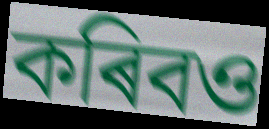
কৰিবও